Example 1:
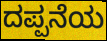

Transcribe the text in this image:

ದಪ್ಪನೆಯ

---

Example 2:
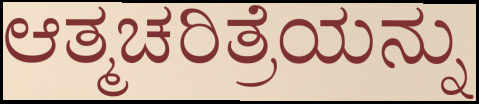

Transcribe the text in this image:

ಆತ್ಮಚರಿತ್ರೆಯನ್ನು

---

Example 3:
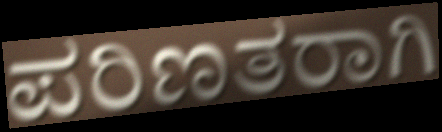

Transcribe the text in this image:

ಪರಿಣತರಾಗಿ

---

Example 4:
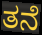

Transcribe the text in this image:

ತನೆ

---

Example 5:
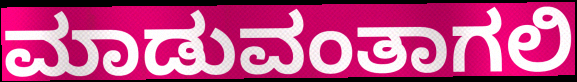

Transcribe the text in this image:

ಮಾಡುವಂತಾಗಲಿ